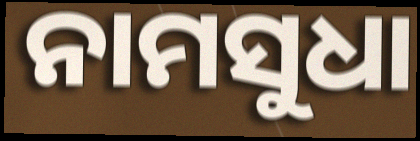
ନାମସୁଧା